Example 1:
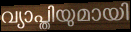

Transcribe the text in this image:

വ്യാപ്തിയുമായി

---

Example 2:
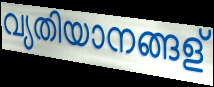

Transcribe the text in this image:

വ്യതിയാനങ്ങള്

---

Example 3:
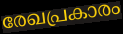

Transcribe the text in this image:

രേഖപ്രകാരം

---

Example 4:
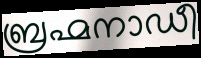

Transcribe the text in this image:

ബ്രഹ്മനാഡീ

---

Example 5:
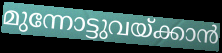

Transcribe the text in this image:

മുന്നോട്ടുവയ്ക്കാൻ